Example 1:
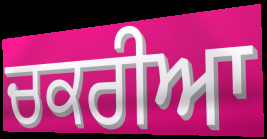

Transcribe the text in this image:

ਚਕਰੀਆ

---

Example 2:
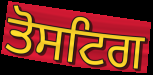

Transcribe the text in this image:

ਤੋਸਟਿਗ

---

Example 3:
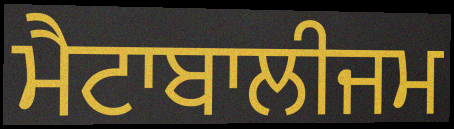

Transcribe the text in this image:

ਮੈਟਾਬਾਲੀਜਮ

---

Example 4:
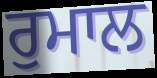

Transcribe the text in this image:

ਰੁਮਾਲ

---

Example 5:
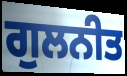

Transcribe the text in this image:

ਗੁਲਨੀਤ